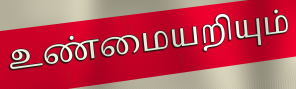
உண்மையறியும்